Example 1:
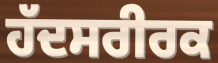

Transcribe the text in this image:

ਹੱਦਸਰੀਰਕ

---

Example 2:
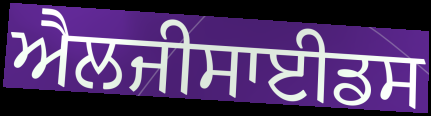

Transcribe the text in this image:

ਐਲਜੀਸਾਈਡਸ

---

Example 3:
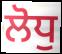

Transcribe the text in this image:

ਲੋਧੁ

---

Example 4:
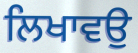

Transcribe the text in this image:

ਲਿਖਾਵਉ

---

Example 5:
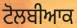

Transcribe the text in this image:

ਟੋਲਬੀਆਕ